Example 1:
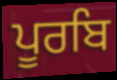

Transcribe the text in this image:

ਪੂਰਬਿ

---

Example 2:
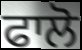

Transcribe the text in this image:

ਫਾਲੋ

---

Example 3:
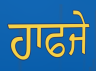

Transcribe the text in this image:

ਹਾਫਜੇ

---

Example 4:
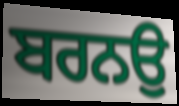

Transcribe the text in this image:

ਬਰਨਉ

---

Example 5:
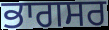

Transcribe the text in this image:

ਭਾਗਸਰ